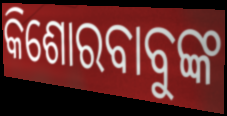
କିଶୋରବାବୁଙ୍କ